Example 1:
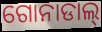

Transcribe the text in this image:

ଗୋନାଡାଲ୍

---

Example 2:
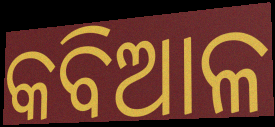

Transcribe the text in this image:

କବିଆଳ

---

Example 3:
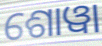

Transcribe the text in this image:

ଶୋୱା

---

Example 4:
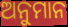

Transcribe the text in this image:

ଅନୁମାନ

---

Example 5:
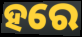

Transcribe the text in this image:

ହରେ